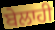
ਬੇਲਾਹੀ